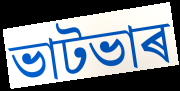
ভাটভাৰ